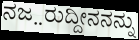
ನಜ಼ರುದ್ದೀನನನ್ನು